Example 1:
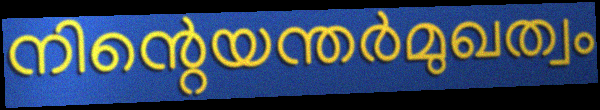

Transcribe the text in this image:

നിന്റെയന്തർമുഖത്വം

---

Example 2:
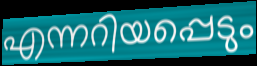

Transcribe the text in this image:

എന്നറിയപ്പെടും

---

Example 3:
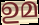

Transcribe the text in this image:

ഉമ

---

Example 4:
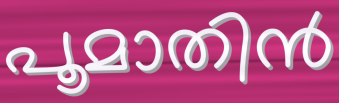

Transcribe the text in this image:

പൂമാതിൻ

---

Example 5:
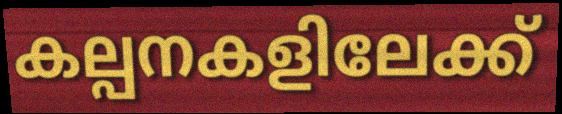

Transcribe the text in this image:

കല്പനകളിലേക്ക്